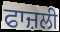
ਫਾਜ਼ਲੀ